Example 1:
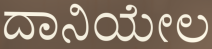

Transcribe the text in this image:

ದಾನಿಯೇಲ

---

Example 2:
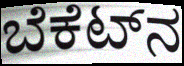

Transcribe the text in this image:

ಬೆಕೆಟ್‌ನ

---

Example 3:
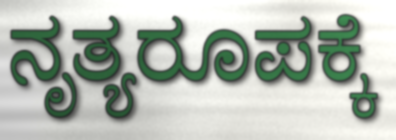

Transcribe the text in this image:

ನೃತ್ಯರೂಪಕ್ಕೆ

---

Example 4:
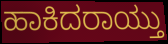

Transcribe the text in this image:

ಹಾಕಿದರಾಯ್ತು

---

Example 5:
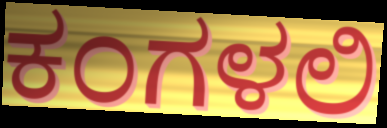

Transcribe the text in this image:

ಕಂಗಳಲಿ